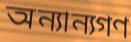
অন্যান্যগণ